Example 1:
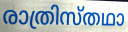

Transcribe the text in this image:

രാത്രിസ്തഥാ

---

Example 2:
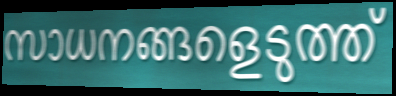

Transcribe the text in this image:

സാധനങ്ങളെടുത്ത്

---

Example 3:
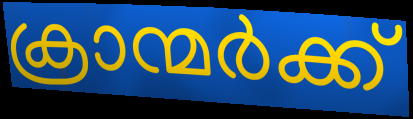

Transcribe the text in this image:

ക്രാന്മർക്ക്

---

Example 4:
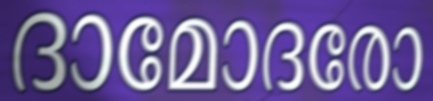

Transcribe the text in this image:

ദാമോദരോ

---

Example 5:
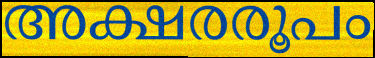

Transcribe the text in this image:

അക്ഷരരൂപം